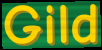
Gild